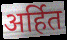
अर्हित